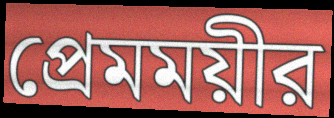
প্রেমময়ীর